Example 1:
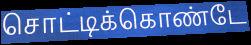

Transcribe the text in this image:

சொட்டிக்கொண்டே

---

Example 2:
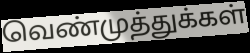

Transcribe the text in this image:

வெண்முத்துக்கள்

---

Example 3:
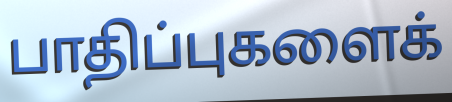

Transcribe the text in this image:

பாதிப்புகளைக்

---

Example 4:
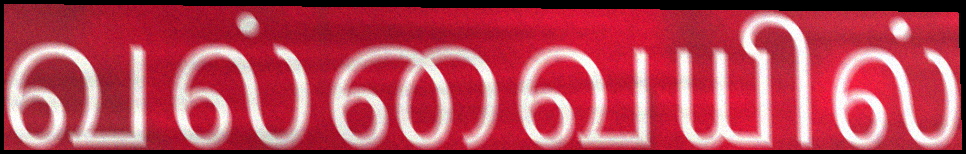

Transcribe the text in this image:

வல்வையில்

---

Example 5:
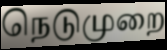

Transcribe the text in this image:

நெடுமுறை